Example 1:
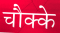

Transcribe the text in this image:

चौक्के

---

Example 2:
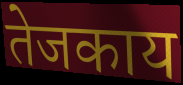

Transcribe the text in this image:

तेजकाय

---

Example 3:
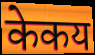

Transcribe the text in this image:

केकय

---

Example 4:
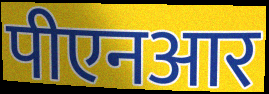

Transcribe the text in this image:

पीएनआर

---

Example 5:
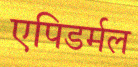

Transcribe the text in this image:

एपिडर्मल